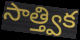
సాత్త్విక